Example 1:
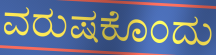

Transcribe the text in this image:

ವರುಷಕೊಂದು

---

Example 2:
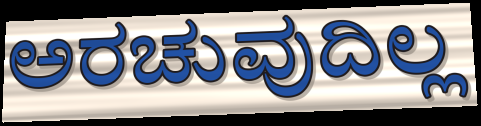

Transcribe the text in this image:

ಅರಚುವುದಿಲ್ಲ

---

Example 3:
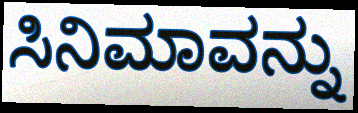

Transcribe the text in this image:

ಸಿನಿಮಾವನ್ನು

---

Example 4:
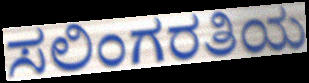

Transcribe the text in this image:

ಸಲಿಂಗರತಿಯ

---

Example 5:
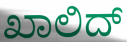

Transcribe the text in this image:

ಖಾಲಿದ್